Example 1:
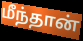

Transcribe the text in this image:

மீந்தான்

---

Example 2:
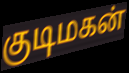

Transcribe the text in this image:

குடிமகன்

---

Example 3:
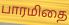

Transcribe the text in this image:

பாரமிதை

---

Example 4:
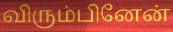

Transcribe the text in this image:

விரும்பினேன்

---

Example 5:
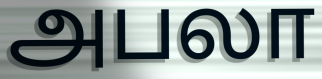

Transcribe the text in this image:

அபலா